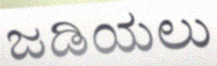
ಜಡಿಯಲು